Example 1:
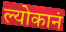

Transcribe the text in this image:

ल्योकानं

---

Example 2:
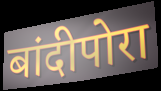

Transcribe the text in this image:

बांदीपोरा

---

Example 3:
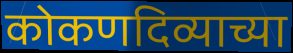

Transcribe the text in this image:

कोकणदिव्याच्या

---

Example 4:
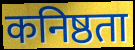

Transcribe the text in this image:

कनिष्ठता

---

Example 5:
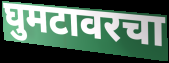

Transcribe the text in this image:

घुमटावरचा